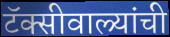
टॅक्सीवाल्यांची